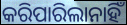
କରିପାରିଲାନାହିଁ